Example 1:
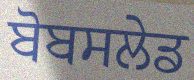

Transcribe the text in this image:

ਬੋਬਸਲੇਡ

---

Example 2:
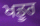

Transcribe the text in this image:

ਖਡੂਰ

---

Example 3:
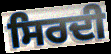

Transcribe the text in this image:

ਸਿਰਦੀ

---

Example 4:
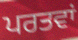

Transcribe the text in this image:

ਪਰਤਵਾਂ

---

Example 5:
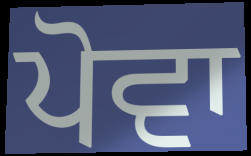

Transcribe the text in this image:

ਪੋਵਾ